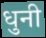
धुनी